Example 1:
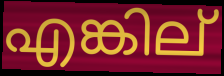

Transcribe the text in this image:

എങ്കില്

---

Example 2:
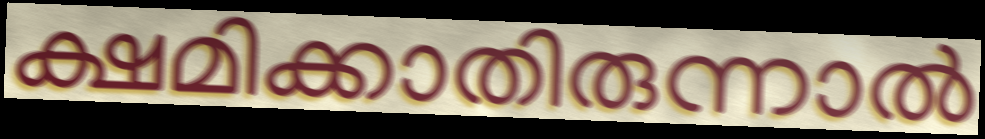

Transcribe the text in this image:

ക്ഷമിക്കാതിരുന്നാൽ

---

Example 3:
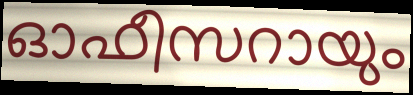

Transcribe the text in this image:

ഓഫീസറായും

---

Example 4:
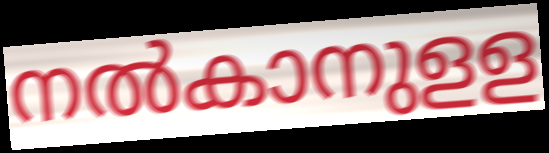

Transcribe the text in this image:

നൽകാനുളള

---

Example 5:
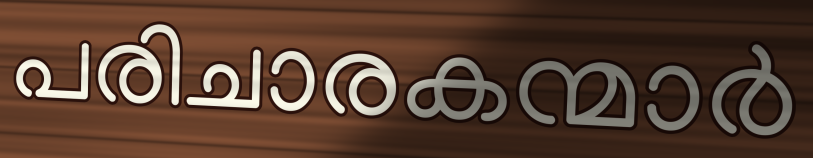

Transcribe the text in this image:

പരിചാരകന്മാർ